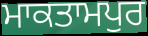
ਮਾਕਤਾਮਪੁਰ